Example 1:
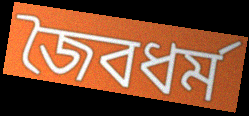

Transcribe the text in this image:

জৈবধর্ম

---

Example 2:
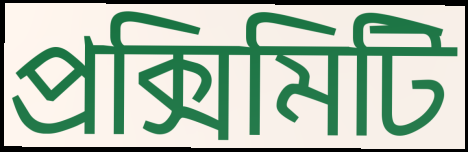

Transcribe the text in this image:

প্রক্সিমিটি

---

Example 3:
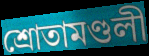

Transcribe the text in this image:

শ্রোতামণ্ডলী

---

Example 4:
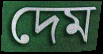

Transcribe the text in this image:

দেম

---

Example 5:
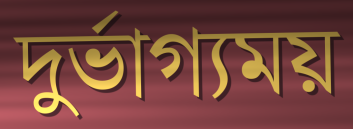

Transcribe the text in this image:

দুর্ভাগ্যময়